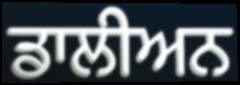
ਡਾਲੀਅਨ